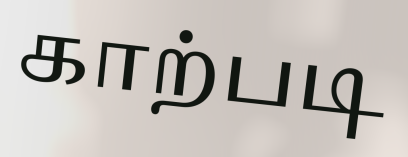
காற்படி